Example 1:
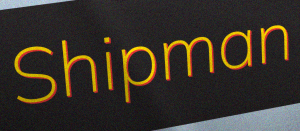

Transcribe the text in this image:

Shipman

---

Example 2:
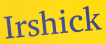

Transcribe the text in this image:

Irshick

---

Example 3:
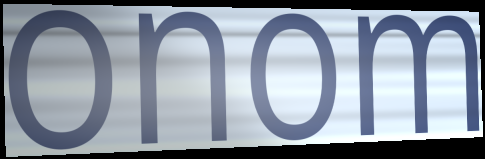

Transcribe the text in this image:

onom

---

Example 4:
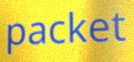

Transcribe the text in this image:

packet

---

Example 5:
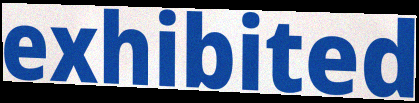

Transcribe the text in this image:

exhibited